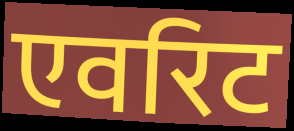
एवरिट